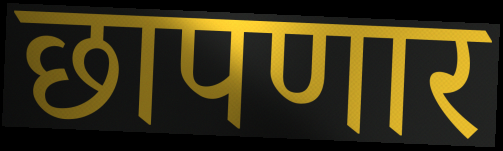
छापणार